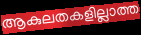
ആകുലതകളില്ലാത്ത